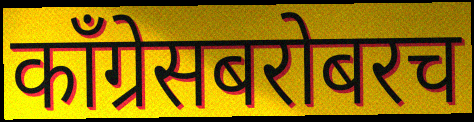
काँग्रेसबरोबरच